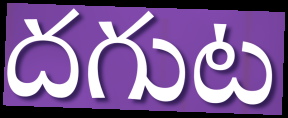
దగుట